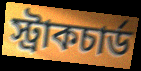
স্ট্রাকচার্ড